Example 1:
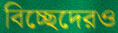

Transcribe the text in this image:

বিচ্ছেদেরও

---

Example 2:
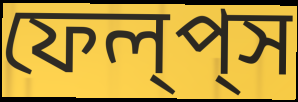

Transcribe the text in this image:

ফেল্‌প্‌স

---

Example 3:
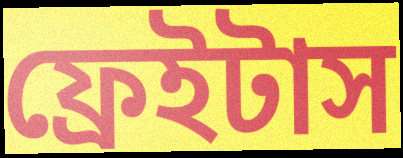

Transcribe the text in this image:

ফ্রেইটাস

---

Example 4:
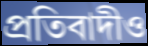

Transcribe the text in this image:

প্রতিবাদীও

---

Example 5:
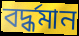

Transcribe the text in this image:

বর্দ্ধমান